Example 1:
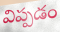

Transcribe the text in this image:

విప్పడం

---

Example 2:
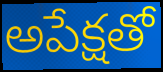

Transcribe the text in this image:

అపేక్షతో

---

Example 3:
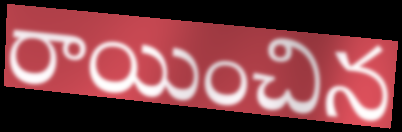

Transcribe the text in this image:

రాయించిన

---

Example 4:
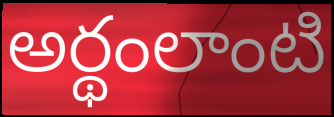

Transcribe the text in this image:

అర్థంలాంటి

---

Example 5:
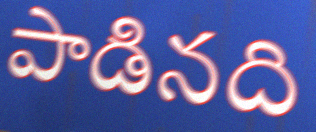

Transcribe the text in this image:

పాడినది